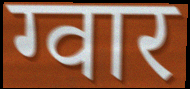
ग्वार